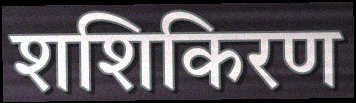
शशिकिरण